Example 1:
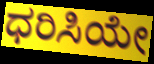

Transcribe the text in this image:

ಧರಿಸಿಯೇ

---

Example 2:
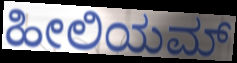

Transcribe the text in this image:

ಹೀಲಿಯಮ್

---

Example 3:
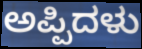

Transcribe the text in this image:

ಅಪ್ಪಿದಳು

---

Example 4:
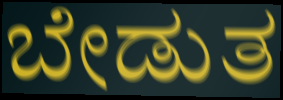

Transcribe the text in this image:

ಬೇಡುತ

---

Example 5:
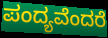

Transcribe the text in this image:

ಪಂದ್ಯವೆಂದರೆ